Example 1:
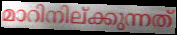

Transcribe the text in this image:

മാറിനില്ക്കുന്നത്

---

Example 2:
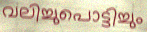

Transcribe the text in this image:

വലിച്ചുപൊട്ടിച്ചും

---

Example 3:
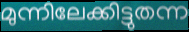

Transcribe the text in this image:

മുന്നിലേക്കിട്ടുതന്ന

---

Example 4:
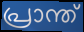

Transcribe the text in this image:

പ്രാന്ത്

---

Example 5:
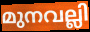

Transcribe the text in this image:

മുനവല്ലി